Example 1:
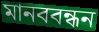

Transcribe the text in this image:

মানববন্ধন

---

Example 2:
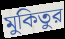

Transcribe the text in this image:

মুকিতুর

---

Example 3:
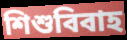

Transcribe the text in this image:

শিশুবিবাহ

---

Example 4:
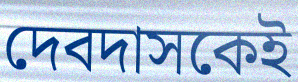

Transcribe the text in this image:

দেবদাসকেই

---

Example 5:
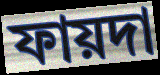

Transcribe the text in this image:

ফায়দা